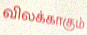
விலக்காகும்